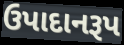
ઉપાદાનરૂપ